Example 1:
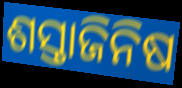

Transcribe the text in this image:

ଶସ୍ତାଜିନିଷ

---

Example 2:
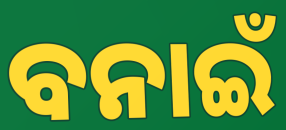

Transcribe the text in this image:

ବନାଇଁ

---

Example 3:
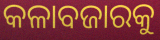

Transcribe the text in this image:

କଳାବଜାରକୁ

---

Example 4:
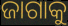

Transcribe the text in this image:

ଜାଗାକୁ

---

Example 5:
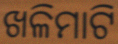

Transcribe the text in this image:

ଖଳିମାଟି